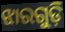
ଝାରଗୁଡ଼ି